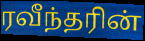
ரவீந்தரின்